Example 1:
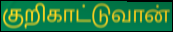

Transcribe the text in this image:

குறிகாட்டுவான்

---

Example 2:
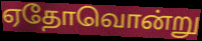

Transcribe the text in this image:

ஏதோவொன்று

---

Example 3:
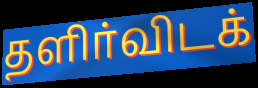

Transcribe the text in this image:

தளிர்விடக்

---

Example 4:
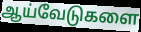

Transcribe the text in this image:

ஆய்வேடுகளை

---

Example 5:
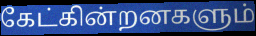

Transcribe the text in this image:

கேட்கின்றனகளும்